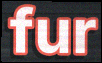
fur